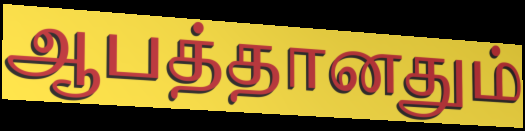
ஆபத்தானதும்